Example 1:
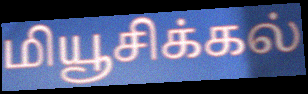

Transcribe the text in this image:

மியூசிக்கல்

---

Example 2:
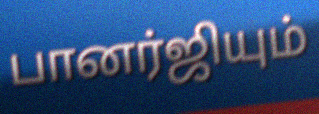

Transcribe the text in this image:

பானர்ஜியும்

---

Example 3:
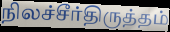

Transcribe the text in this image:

நிலச்சீர்திருத்தம்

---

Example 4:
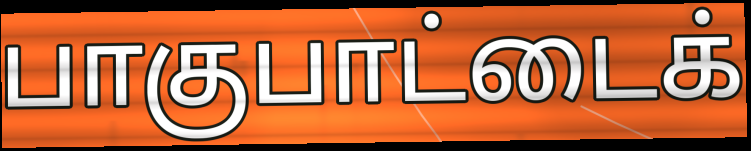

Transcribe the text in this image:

பாகுபாட்டைக்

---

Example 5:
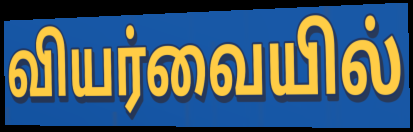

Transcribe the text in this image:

வியர்வையில்